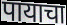
पायाचा